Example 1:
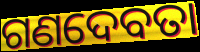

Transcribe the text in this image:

ଗଣଦେବତା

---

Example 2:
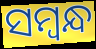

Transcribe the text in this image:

ସମ୍ବନ୍ଧ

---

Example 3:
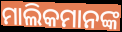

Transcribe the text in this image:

ମାଲିକମାନଙ୍କ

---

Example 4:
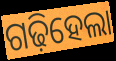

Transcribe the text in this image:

ଗଢ଼ିହେଲା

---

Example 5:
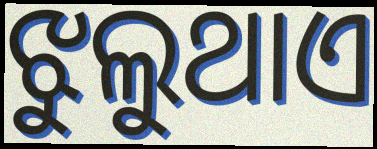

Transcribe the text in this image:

ଝୁଲୁଥାଏ